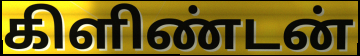
கிளிண்டன்